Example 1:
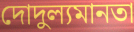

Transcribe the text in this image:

দোদুল্যমানতা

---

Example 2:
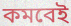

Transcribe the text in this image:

কমবেই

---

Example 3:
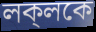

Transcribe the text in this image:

লক্‌লকে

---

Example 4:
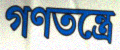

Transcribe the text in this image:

গণতন্ত্রে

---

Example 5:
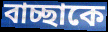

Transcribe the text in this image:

বাচ্ছাকে